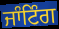
ਜਾੰਟਿੰਗ